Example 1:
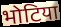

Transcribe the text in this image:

भोटिया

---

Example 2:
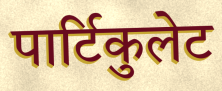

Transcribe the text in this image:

पार्टिकुलेट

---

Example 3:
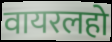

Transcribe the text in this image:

वायरलहो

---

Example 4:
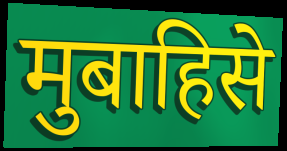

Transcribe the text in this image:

मुबाहिसे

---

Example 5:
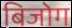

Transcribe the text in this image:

बिजोग